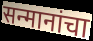
सन्मानांचा